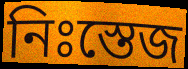
নিঃস্তেজ